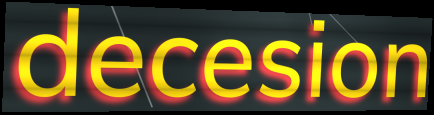
decesion